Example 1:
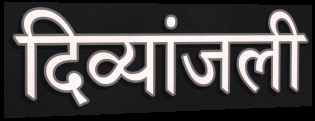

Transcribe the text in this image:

दिव्यांजली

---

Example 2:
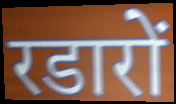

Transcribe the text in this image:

रडारों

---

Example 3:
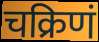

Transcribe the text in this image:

चक्रिणं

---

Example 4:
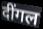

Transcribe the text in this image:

दींगल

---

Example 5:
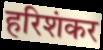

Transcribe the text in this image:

हरिशंकर